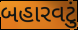
બહારવટું